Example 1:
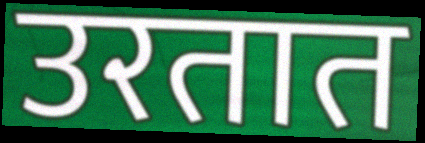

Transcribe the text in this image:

उरतात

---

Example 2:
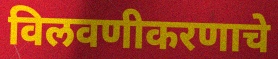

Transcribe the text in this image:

विलवणीकरणाचे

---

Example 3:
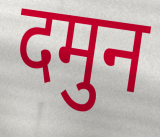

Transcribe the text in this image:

दमुन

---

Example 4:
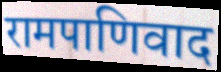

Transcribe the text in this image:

रामपाणिवाद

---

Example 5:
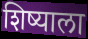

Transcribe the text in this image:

शिष्याला